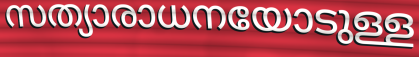
സത്യാരാധനയോടുള്ള